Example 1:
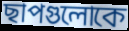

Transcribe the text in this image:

ছাপগুলোকে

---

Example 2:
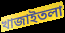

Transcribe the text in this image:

খাজাইতলা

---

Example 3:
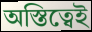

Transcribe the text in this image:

অস্তিত্বেই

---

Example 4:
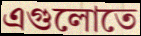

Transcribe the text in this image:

এগুলোতে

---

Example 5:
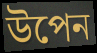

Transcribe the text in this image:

উপেন